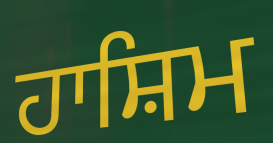
ਹਾਸ਼ਿਮ